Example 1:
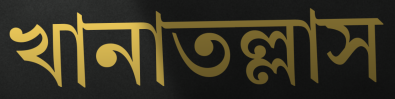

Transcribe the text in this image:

খানাতল্লাস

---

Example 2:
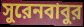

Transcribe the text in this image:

সুরেনবাবুর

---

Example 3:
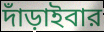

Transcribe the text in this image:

দাঁড়াইবার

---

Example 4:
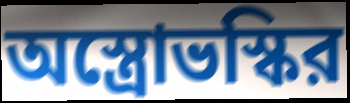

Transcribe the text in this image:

অস্ত্রোভস্কির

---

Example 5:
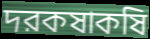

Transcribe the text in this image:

দরকষাকষি